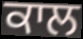
ਕਾਲ